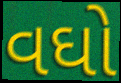
વઘો